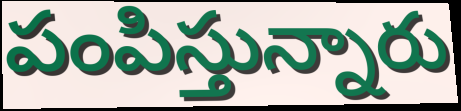
పంపిస్తున్నారు